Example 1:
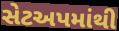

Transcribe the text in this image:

સેટઅપમાંથી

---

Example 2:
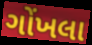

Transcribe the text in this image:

ગોંખલા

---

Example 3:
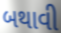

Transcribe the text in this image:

બથાવી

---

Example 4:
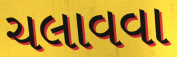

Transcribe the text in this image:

ચલાવવા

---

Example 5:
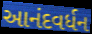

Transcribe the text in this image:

આનંદવર્ધન